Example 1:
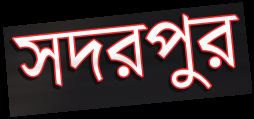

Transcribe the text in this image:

সদরপুর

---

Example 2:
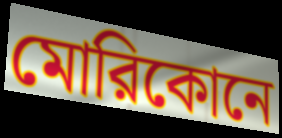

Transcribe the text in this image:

মোরিকোনে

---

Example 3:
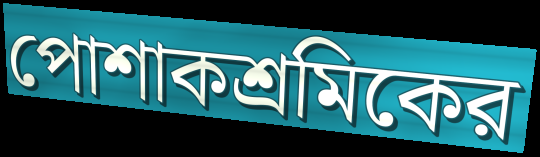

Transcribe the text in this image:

পোশাকশ্রমিকের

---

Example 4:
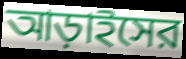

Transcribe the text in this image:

আড়াইসের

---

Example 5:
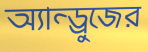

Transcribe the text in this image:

অ্যান্ড্রুজের